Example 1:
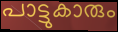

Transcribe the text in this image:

പാട്ടുകാരും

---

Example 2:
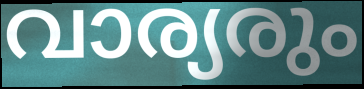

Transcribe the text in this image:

വാര്യരും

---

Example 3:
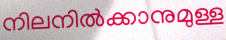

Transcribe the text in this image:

നിലനിൽക്കാനുമുള്ള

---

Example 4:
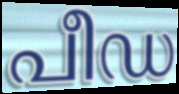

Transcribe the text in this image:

പീഡ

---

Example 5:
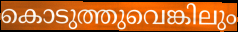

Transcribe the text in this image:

കൊടുത്തുവെങ്കിലും